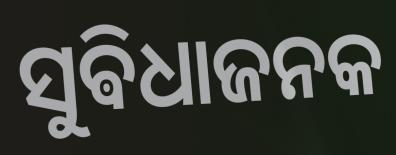
ସୁଵିଧାଜନକ